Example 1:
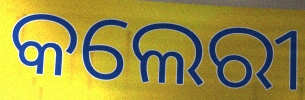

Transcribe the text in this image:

କଲେରୀ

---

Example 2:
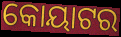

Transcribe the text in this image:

କୋୟାଟର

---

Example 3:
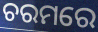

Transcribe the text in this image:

ଚରମରେ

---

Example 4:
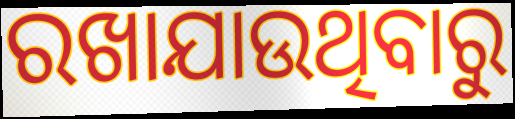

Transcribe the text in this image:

ରଖାଯାଉଥିବାରୁ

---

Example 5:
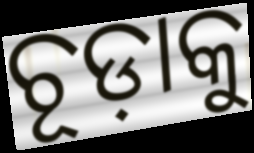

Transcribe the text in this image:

ଚୂଡ଼ାକୁ